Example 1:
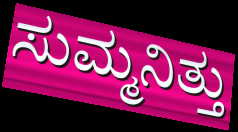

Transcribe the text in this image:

ಸುಮ್ಮನಿತ್ತು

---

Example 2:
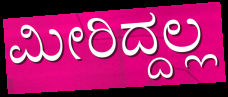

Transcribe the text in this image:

ಮೀರಿದ್ದಲ್ಲ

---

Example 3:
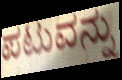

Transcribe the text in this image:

ಪಟುವನ್ನು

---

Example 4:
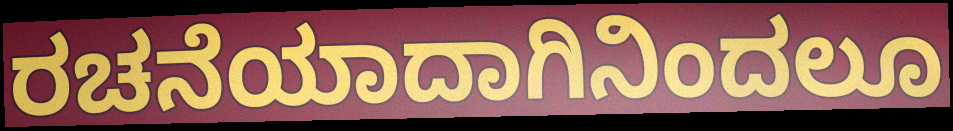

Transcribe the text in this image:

ರಚನೆಯಾದಾಗಿನಿಂದಲೂ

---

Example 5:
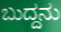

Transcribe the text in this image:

ಬುದ್ದನು